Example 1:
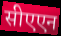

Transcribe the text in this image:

सीएएन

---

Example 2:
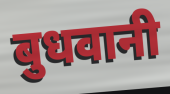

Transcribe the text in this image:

बुधवानी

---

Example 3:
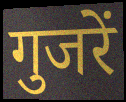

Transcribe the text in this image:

गुजरें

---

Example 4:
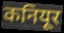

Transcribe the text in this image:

कनियूर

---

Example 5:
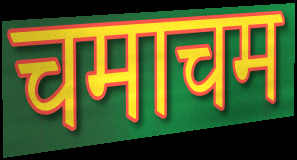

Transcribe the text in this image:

चमाचम